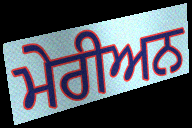
ਮੇਰੀਅਨ